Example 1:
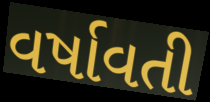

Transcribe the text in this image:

વર્ષાવતી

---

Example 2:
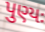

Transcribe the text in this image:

પુણ્યઃ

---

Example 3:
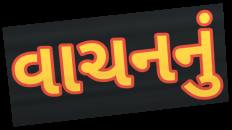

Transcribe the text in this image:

વાચનનું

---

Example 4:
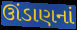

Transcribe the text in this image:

ઊંડાણનાં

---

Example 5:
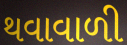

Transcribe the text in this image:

થવાવાળી